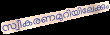
സ്വീകരണമുറിയിലേക്കും